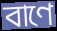
বাণে